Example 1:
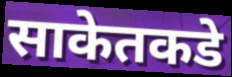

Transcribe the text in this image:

साकेतकडे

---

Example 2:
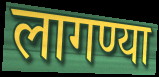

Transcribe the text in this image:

लागण्या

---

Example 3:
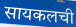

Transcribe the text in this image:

सायकलची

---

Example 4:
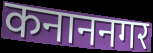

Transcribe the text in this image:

कनाननगर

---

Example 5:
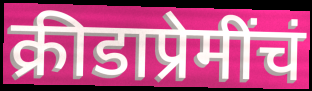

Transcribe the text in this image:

क्रीडाप्रेमींचं